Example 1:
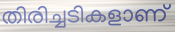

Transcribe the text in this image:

തിരിച്ചടികളാണ്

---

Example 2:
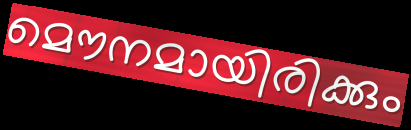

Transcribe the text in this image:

മൌനമായിരിക്കും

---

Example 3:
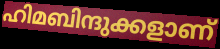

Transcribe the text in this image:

ഹിമബിന്ദുക്കളാണ്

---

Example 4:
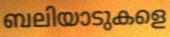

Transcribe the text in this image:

ബലിയാടുകളെ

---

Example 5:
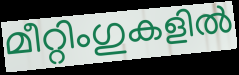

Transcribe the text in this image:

മീറ്റിംഗുകളിൽ